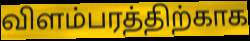
விளம்பரத்திற்காக